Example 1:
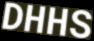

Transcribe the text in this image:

DHHS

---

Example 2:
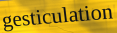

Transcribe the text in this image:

gesticulation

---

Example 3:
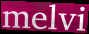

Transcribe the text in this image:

melvi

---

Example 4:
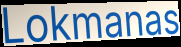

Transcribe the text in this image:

Lokmanas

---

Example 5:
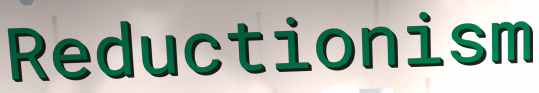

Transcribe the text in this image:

Reductionism